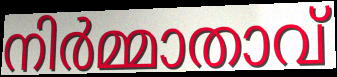
നിർമ്മാതാവ്